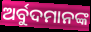
ଅର୍ବୁଦମାନଙ୍କ